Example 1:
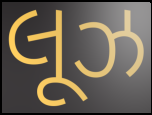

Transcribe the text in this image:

લૂઝ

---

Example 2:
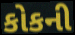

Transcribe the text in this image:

કોકની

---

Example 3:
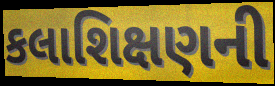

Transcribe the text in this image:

કલાશિક્ષણની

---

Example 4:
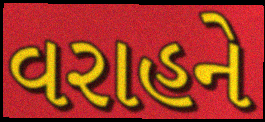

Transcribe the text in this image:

વરાહને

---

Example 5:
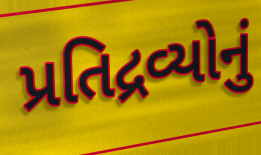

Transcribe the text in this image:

પ્રતિદ્રવ્યોનું